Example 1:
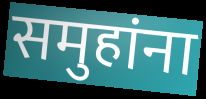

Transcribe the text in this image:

समुहांना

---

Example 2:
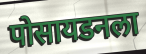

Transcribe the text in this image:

पोसायडनला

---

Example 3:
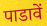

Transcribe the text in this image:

पाडावें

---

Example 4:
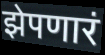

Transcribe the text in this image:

झेपणारं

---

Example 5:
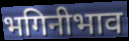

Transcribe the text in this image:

भगिनीभाव